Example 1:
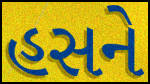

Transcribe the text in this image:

હસને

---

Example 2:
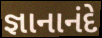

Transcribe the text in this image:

જ્ઞાનાનંદે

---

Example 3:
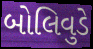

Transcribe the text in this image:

બોલિવુડે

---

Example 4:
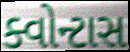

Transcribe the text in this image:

ક્વોન્ટાસ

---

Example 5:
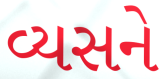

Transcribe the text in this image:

વ્યસને